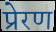
प्रेरण